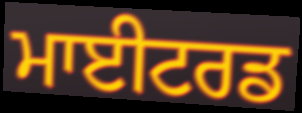
ਮਾਈਟਰਡ